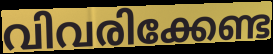
വിവരിക്കേണ്ട